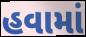
હવામાં